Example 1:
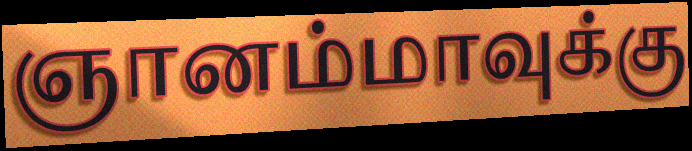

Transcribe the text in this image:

ஞானம்மாவுக்கு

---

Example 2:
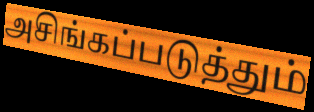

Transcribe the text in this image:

அசிங்கப்படுத்தும்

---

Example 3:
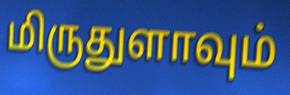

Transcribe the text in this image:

மிருதுளாவும்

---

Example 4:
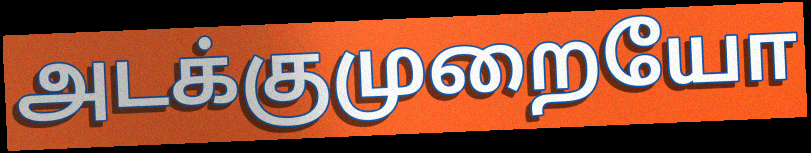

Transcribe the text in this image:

அடக்குமுறையோ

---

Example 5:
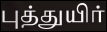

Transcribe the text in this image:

புத்துயிர்